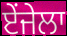
ਏਂਜੇਲਾ